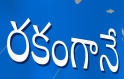
రకంగానే